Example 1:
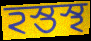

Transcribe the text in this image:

হস্তস্থ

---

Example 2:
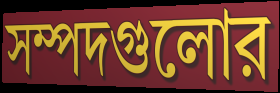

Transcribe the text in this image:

সম্পদগুলোর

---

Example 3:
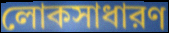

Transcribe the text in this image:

লোকসাধারণ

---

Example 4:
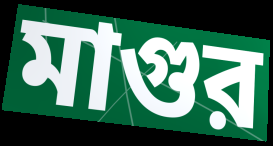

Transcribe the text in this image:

মাগুর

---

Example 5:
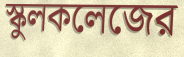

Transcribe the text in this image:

স্কুলকলেজের